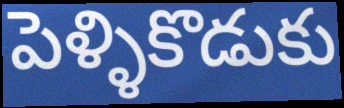
పెళ్ళికొడుకు